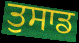
ਤੁਸਾਡ